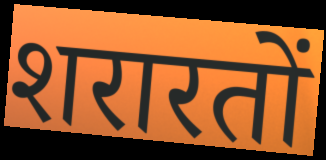
शरारतों